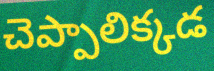
చెప్పాలిక్కడ